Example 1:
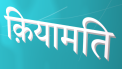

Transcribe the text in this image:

क़ियामति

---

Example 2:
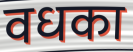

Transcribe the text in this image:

वधका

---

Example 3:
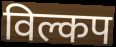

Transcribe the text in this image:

विल्कप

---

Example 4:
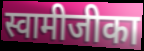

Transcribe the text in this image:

स्वामीजीका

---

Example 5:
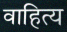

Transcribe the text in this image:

वाहित्य